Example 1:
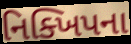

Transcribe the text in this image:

નિક્ખિપના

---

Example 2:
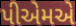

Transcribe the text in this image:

પીએમએ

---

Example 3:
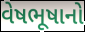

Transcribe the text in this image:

વેષભૂષાનો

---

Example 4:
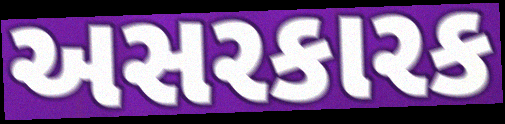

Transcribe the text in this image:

અસરકારક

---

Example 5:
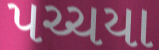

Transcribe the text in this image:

પચ્ચયા